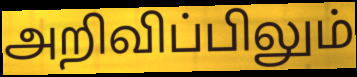
அறிவிப்பிலும்